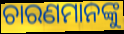
ଚାରଣମାନଙ୍କୁ